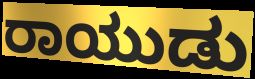
ರಾಯುಡು